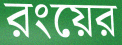
রংয়ের